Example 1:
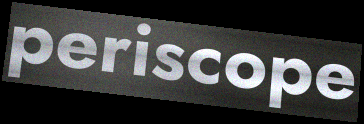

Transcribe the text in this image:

periscope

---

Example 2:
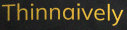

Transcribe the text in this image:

Thinnaively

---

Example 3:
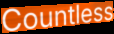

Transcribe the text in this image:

Countless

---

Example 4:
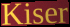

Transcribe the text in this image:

Kiser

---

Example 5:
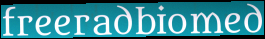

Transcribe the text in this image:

freeradbiomed